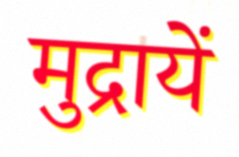
मुद्रायें